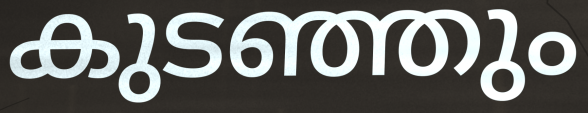
കുടഞ്ഞും